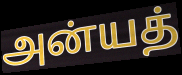
அன்யத்